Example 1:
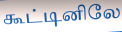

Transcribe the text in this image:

கூட்டினிலே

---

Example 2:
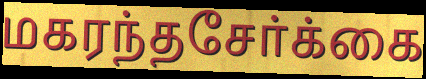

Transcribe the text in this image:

மகரந்தசேர்க்கை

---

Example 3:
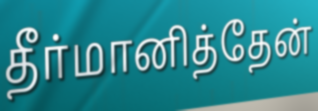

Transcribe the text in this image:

தீர்மானித்தேன்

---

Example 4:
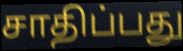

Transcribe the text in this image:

சாதிப்பது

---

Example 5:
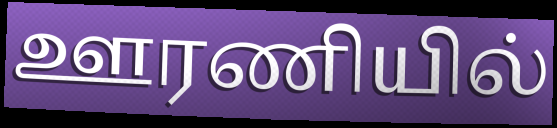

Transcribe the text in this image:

ஊரணியில்